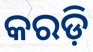
କରଡ଼ି